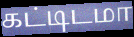
கட்டிடமா